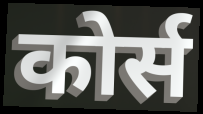
कोर्स